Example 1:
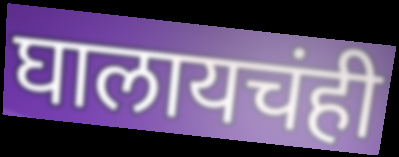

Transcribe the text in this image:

घालायचंही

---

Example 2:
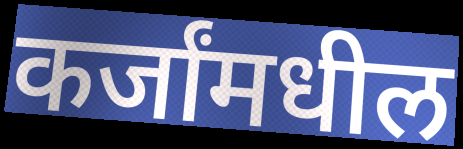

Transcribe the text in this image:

कर्जांमधील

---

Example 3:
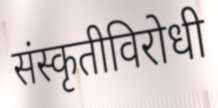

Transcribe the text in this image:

संस्कृतीविरोधी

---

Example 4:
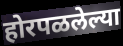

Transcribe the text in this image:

होरपळलेल्या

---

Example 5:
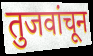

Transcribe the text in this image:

तुजवांचून